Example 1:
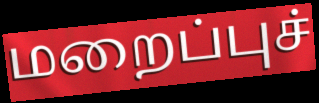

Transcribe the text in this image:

மறைப்புச்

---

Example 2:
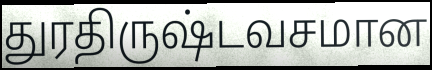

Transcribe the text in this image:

துரதிருஷ்டவசமான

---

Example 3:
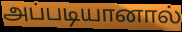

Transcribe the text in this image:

அப்படியானால்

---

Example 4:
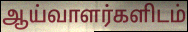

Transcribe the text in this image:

ஆய்வாளர்களிடம்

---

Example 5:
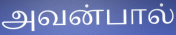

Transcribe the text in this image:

அவன்பால்